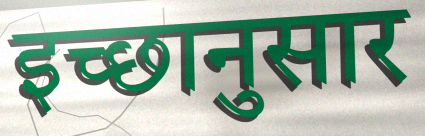
इच्‍छानुसार